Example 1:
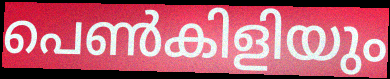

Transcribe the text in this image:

പെൺകിളിയും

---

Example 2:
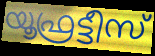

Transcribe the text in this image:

യൂഫ്രട്ടീസ്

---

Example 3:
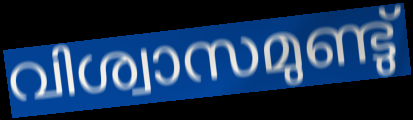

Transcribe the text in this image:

വിശ്വാസമുണ്ടു്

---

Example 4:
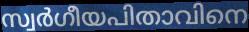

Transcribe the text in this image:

സ്വർഗീയപിതാവിനെ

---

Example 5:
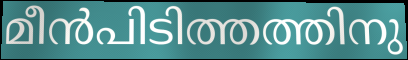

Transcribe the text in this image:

മീൻപിടിത്തത്തിനു